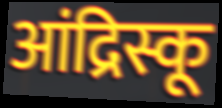
आंद्रिस्कू